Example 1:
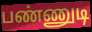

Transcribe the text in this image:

பண்ணுடி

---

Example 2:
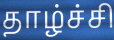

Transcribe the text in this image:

தாழ்ச்சி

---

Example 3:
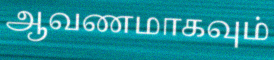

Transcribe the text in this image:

ஆவணமாகவும்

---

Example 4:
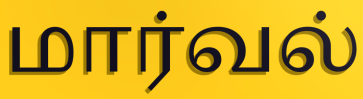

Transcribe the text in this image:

மார்வல்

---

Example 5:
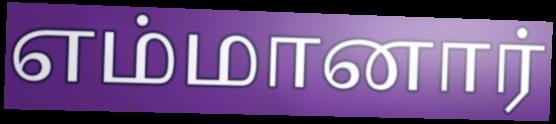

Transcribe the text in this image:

எம்மானார்